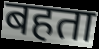
बहता